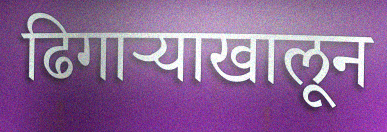
ढिगाऱ्याखालून